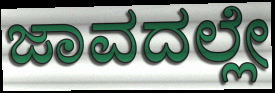
ಜಾವದಲ್ಲೇ